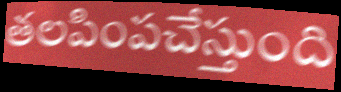
తలపింపచేస్తుంది